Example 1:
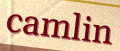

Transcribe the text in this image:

camlin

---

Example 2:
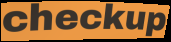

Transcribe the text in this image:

checkup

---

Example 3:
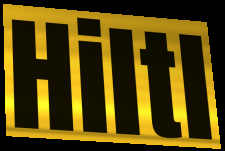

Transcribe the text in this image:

Hiltl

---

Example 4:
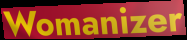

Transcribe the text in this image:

Womanizer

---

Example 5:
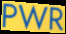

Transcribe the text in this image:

PWR